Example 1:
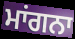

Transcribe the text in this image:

ਮਾਂਗਨਾ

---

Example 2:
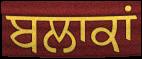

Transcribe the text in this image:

ਬਲਾਕਾਂ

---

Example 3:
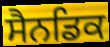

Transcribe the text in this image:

ਸੈਨਡਿਕ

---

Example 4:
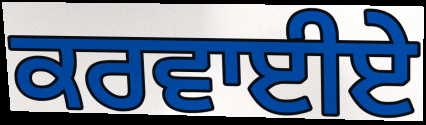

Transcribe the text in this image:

ਕਰਵਾਈਏ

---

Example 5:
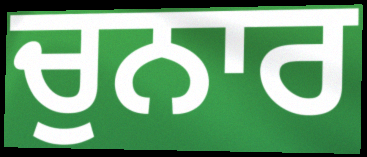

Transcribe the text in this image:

ਚੁਨਾਰ